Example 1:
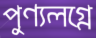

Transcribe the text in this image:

পুণ্যলগ্নে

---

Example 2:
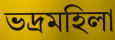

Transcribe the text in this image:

ভদ্রমহিলা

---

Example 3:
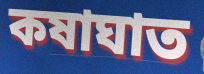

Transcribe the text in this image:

কষাঘাত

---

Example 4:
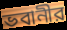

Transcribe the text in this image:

ভবানীর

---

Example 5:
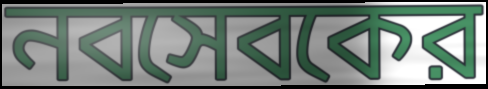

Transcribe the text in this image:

নবসেবকের